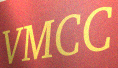
VMCC